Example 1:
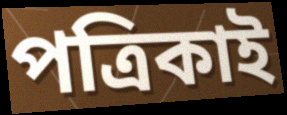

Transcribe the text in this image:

পত্রিকাই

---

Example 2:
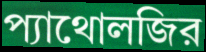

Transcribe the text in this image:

প্যাথোলজির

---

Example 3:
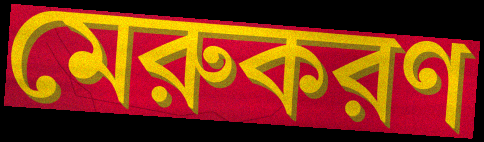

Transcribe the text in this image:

মেরুকরণ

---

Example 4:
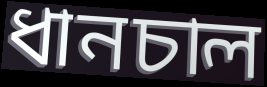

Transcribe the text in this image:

ধানচাল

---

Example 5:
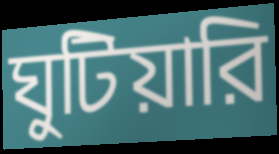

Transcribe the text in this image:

ঘুটিয়ারি